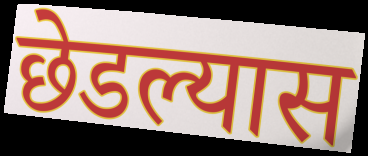
छेडल्यास